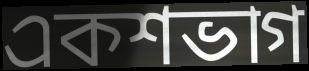
একশভাগ